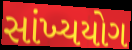
સાંખ્યયોગ